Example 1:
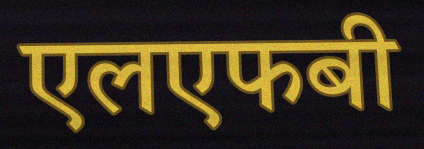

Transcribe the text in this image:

एलएफबी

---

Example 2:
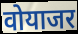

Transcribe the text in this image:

वोयाजर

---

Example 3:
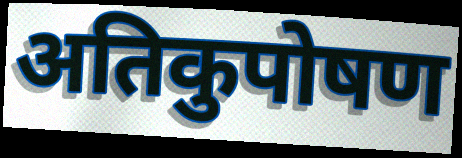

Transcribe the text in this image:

अतिकुपोषण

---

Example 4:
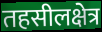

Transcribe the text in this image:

तहसीलक्षेत्र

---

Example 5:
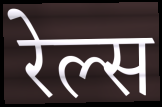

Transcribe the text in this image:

रेल्स